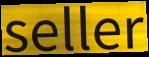
seller